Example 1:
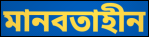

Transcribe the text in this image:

মানবতাহীন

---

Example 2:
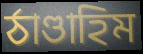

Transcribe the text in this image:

ঠাণ্ডাহিম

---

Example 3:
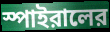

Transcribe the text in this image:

স্পাইরালের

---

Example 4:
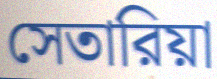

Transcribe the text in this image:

সেতারিয়া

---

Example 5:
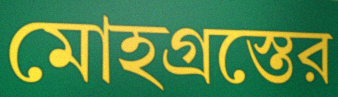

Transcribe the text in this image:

মোহগ্রস্তের